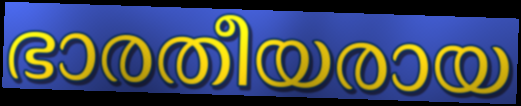
ഭാരതീയരായ